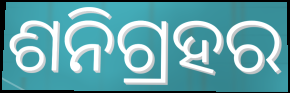
ଶନିଗ୍ରହର